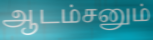
ஆடம்சனும்